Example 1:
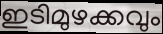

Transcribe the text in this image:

ഇടിമുഴക്കവും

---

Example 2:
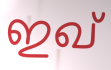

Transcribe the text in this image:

ഇഖ്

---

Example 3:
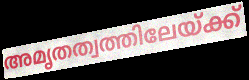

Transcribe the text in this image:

അമൃതത്വത്തിലേയ്ക്ക്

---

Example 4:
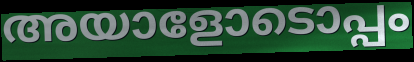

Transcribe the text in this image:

അയാളോടൊപ്പം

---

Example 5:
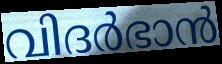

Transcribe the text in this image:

വിദർഭാൻ